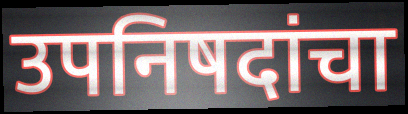
उपनिषदांचा